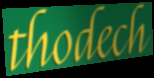
thodech